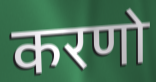
करणो